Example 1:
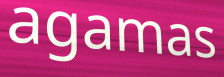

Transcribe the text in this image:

agamas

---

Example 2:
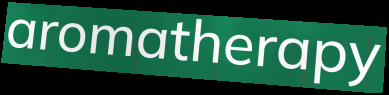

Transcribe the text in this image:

aromatherapy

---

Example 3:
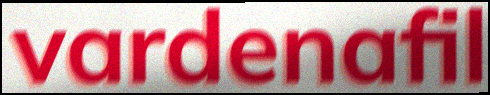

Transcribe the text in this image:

vardenafil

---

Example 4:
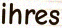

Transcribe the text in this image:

ihres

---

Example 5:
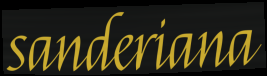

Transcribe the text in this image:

sanderiana